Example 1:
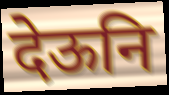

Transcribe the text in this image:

देऊनि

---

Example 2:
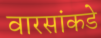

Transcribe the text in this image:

वारसांकडे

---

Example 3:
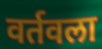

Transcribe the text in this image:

वर्तवला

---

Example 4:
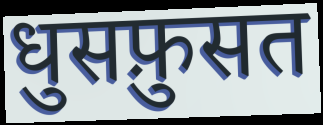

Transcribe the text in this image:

धुसफ़ुसत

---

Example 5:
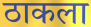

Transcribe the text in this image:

ठाकला